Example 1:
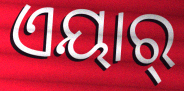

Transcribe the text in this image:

ଏୟାର୍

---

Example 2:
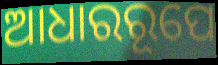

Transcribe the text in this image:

ଆଧାରରୂପେ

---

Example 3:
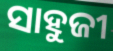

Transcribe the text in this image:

ସାହୁଜୀ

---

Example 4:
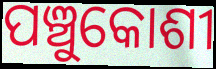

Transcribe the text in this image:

ପଞ୍ଚୁକୋଶୀ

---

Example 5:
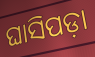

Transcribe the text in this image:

ଘାସିପଡ଼ା